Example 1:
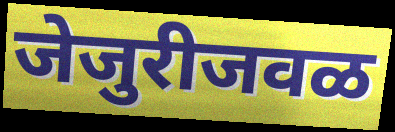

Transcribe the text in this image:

जेजुरीजवळ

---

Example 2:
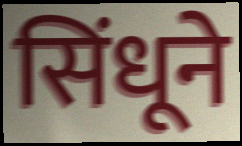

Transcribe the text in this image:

सिंधूने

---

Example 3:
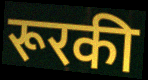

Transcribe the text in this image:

रूरकी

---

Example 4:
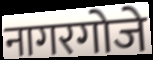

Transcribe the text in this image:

नागरगोजे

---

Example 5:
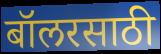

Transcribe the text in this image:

बॉलरसाठी